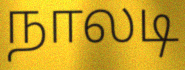
நாலடி